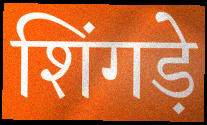
शिंगड़े